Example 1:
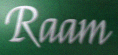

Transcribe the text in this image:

Raam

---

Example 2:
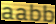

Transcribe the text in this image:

aabb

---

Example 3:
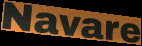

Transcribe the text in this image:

Navare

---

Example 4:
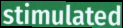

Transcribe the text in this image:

stimulated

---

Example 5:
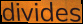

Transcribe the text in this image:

divides